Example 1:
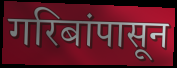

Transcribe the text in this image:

गरिबांपासून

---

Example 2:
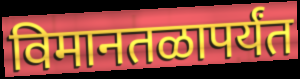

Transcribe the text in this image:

विमानतळापर्यंत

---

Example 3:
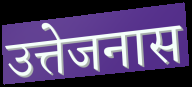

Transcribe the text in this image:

उत्तेजनास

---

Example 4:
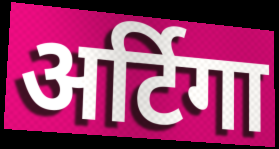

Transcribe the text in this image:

अर्टिगा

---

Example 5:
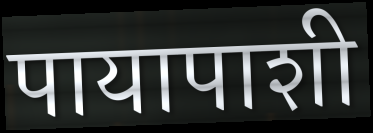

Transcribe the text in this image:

पायापाशी